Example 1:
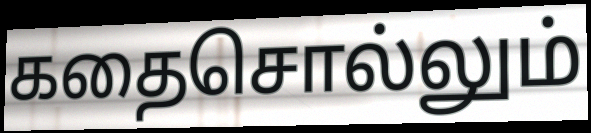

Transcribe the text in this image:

கதைசொல்லும்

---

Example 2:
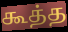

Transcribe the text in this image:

கூத்த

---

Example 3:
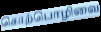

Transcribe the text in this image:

சொற்பொழிவை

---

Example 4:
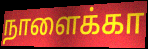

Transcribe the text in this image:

நாளைக்கா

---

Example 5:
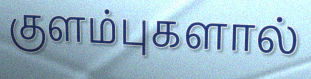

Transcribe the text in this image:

குளம்புகளால்